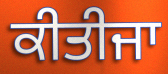
ਕੀਤੀਜਾ